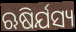
ଋଷିର୍ଯସ୍ୟ